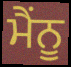
ਮੈਂਨੂ